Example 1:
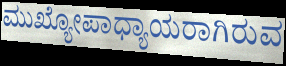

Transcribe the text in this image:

ಮುಖ್ಯೋಪಾಧ್ಯಾಯರಾಗಿರುವ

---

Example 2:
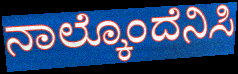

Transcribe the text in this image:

ನಾಲ್ಕೊಂದೆನಿಸಿ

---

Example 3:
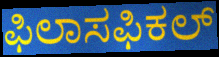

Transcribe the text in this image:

ಫಿಲಾಸಫಿಕಲ್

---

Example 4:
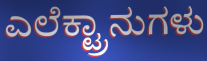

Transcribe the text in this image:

ಎಲೆಕ್ಟ್ರಾನುಗಳು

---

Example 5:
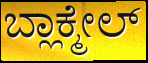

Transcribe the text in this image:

ಬ್ಲಾಕ್ಮೇಲ್